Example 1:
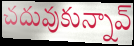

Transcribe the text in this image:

చదువుకున్నావ్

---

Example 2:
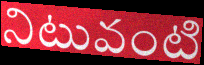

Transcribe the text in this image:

నిటువంటి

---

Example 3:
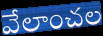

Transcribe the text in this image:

వేలాంచల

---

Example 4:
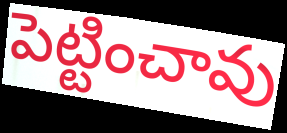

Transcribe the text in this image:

పెట్టించావు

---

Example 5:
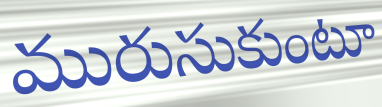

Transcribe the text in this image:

మురుసుకుంటూ